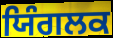
ਯਿੰਗਲਕ